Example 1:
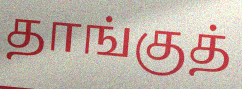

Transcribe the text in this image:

தாங்குத்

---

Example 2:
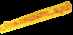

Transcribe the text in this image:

பிரகாசமடையும்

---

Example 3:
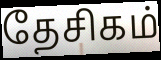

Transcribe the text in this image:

தேசிகம்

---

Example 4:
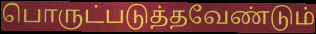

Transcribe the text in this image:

பொருட்படுத்தவேண்டும்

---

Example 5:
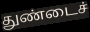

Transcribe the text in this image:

துண்டைச்